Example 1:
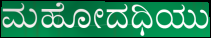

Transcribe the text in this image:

ಮಹೋದಧಿಯು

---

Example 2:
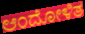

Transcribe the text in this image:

ಆಂದೋಳಿತ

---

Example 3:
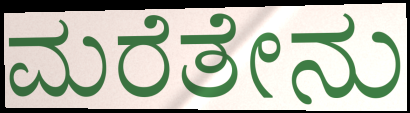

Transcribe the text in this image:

ಮರೆತೇನು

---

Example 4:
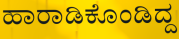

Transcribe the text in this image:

ಹಾರಾಡಿಕೊಂಡಿದ್ದ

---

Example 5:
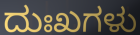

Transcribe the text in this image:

ದುಃಖಗಳು